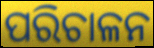
ପରିଚାଳନ